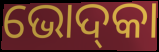
ଭୋଦ୍‌କା